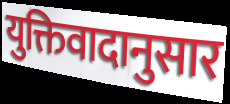
युक्तिवादानुसार